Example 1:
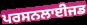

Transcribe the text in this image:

ਪਰਸਨਲਾਈਜਡ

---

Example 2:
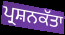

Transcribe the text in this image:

ਪ੍ਰਸ਼ਨਕੱਤਾ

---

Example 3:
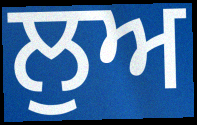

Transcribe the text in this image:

ਲੁਅ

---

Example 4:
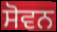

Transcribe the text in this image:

ਸੋਵਨ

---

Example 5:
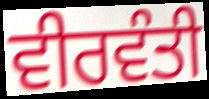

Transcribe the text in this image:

ਵੀਰਵੰਤੀ